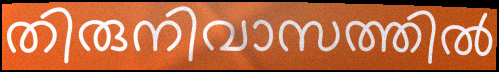
തിരുനിവാസത്തിൽ